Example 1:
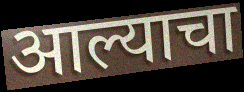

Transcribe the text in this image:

आल्‍याचा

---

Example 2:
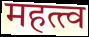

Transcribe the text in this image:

महत्‍त्‍व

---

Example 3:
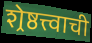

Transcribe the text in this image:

श्रेष्ठत्त्वाची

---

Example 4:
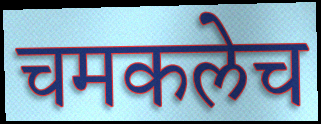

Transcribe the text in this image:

चमकलेच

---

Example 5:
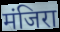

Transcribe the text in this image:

मंजिरा